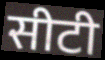
सीटी